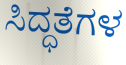
ಸಿದ್ಧತೆಗಳ